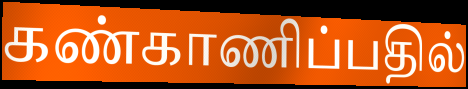
கண்காணிப்பதில்